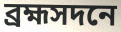
ব্রহ্মসদনে